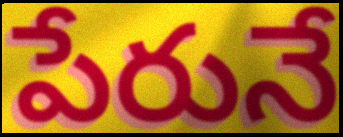
పేరునే